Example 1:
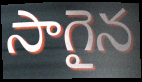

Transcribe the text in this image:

సాగైన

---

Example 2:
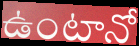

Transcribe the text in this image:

ఉంటానో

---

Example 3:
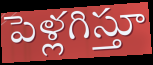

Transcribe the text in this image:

పెళ్లగిస్తూ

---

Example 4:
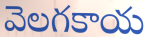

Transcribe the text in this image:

వెలగకాయ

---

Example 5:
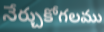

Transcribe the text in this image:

నేర్చుకోగలము